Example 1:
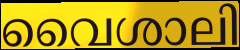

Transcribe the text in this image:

വൈശാലി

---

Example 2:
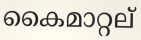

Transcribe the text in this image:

കൈമാറ്റല്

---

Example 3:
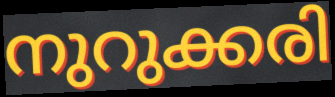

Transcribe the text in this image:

നുറുക്കരി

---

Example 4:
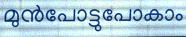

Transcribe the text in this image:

മുൻപോട്ടുപോകാം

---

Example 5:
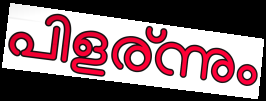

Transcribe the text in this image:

പിളര്ന്നും